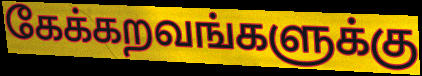
கேக்கறவங்களுக்கு